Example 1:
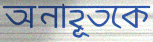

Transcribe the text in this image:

অনাহূতকে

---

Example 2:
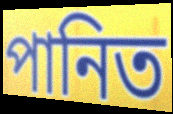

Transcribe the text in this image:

পানিত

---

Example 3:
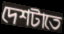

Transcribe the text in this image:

দেশটাতে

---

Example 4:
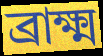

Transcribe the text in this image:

ব্রাক্ষ্ম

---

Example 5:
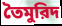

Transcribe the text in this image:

তৈমুরিদ